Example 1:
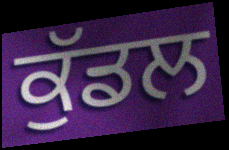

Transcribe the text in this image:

ਕੁੱਡਲ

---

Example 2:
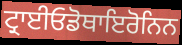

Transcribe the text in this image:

ਟ੍ਰਾਈਓਡੋਥਾਇਰੋਨਿਨ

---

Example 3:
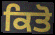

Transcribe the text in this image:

ਕਿਤੋ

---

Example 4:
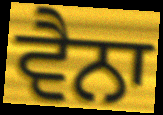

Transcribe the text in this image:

ਵੈਨਾ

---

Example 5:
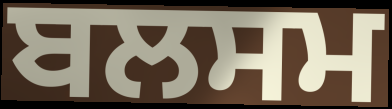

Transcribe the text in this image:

ਬਲਸਮ